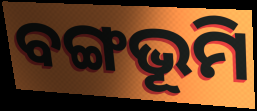
ବଙ୍ଗଭୂମି